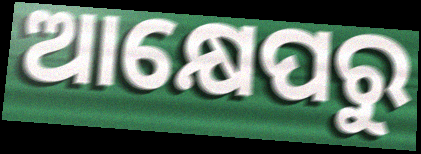
ଆକ୍ଷେପରୁ